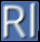
Rl